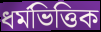
ধৰ্মভিত্তিক